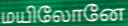
மயிலோனே